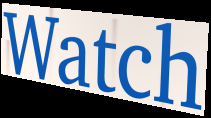
Watch